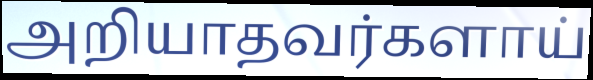
அறியாதவர்களாய்